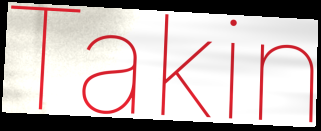
Takin